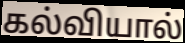
கல்வியால்